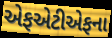
એફએટીએફના